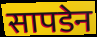
सापडेन